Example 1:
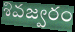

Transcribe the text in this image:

శివజ్వరం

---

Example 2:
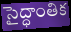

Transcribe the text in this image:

సైద్ధాంతిక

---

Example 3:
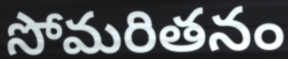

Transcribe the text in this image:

సోమరితనం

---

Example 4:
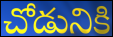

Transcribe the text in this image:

చోడునికి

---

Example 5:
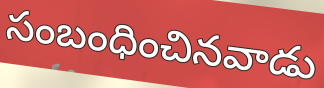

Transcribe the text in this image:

సంబంధించినవాడు